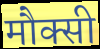
मौक्सी